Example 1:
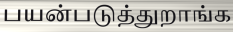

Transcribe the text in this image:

பயன்படுத்துறாங்க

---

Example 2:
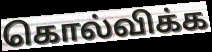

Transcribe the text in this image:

கொல்விக்க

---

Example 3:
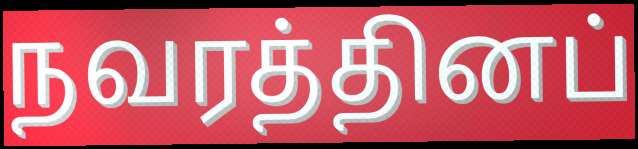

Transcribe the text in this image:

நவரத்தினப்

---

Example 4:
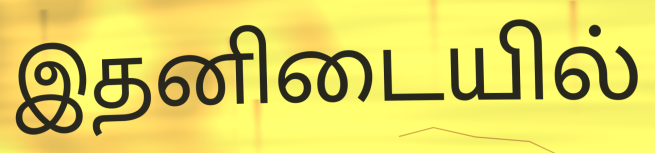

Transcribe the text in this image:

இதனிடையில்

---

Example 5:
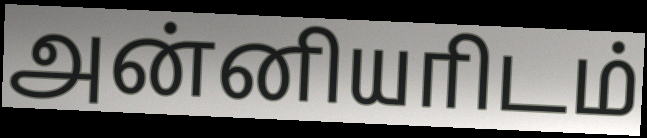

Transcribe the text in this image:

அன்னியரிடம்